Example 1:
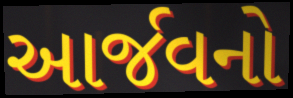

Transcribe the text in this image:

આર્જવનો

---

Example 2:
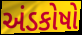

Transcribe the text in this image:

અંડકોષો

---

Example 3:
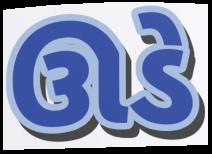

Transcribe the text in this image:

ઊડે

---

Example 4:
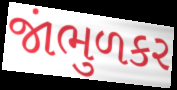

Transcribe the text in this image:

જાંભુળકર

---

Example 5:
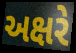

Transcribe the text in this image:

અક્ષરે